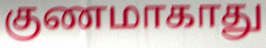
குணமாகாது